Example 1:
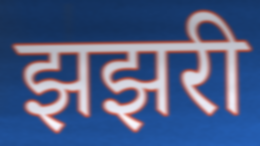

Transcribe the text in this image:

झझरी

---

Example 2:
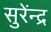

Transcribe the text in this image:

सुरेंन्द्र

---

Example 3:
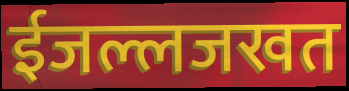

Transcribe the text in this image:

ईजल्लजखत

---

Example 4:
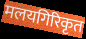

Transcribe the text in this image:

मलयगिरिकृत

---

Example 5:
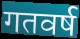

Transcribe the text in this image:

गतवर्ष